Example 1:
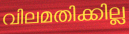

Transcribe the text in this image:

വിലമതിക്കില്ല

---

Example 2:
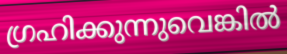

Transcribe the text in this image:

ഗ്രഹിക്കുന്നുവെങ്കിൽ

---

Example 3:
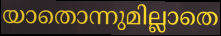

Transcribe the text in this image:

യാതൊന്നുമില്ലാതെ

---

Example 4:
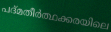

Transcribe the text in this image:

പദ്മതീർത്ഥക്കരയിലെ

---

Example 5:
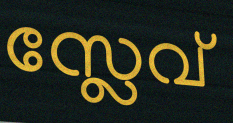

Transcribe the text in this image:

സ്ലേവ്